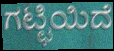
ಗಟ್ಟಿಯಿದೆ